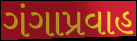
ગંગાપ્રવાહ